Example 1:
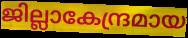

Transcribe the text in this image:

ജില്ലാകേന്ദ്രമായ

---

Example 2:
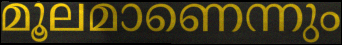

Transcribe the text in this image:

മൂലമാണെന്നും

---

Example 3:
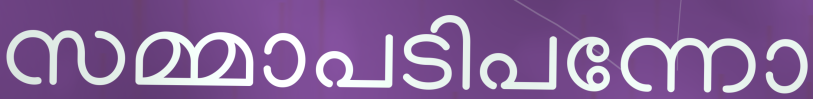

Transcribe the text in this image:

സമ്മാപടിപന്നോ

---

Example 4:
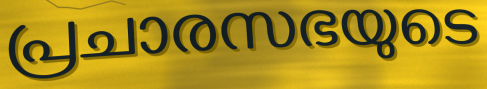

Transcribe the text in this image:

പ്രചാരസഭയുടെ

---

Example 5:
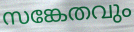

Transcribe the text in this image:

സങ്കേതവും